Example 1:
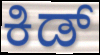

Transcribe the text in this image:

ಕಿಡ್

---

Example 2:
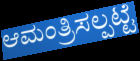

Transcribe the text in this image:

ಆಮಂತ್ರಿಸಲ್ಪಟ್ಟೆ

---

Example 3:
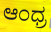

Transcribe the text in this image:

ಆಂಧ್ರ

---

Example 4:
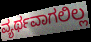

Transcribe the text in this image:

ವ್ಯರ್ಥವಾಗಲಿಲ್ಲ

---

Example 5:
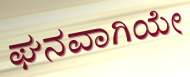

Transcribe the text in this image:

ಘನವಾಗಿಯೇ